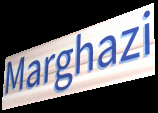
Marghazi